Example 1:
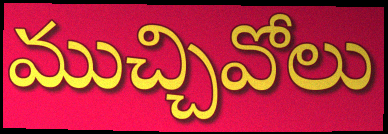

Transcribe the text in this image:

ముచ్చివోలు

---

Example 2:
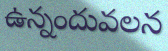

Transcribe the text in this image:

ఉన్నందువలన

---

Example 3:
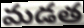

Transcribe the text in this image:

మడత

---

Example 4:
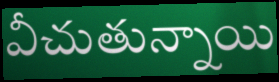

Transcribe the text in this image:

వీచుతున్నాయి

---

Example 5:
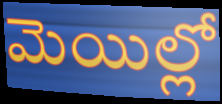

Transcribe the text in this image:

మెయిల్లో